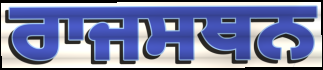
ਰਾਜਸਥਨ